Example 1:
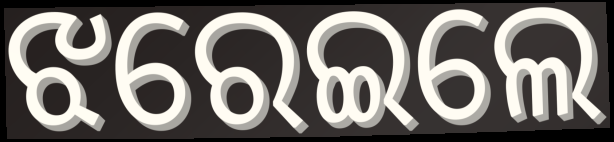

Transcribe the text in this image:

ଝରେଇଲେ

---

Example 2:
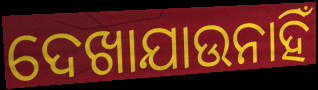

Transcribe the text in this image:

ଦେଖାଯାଉନାହିଁ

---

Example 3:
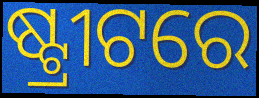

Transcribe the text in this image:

ଷ୍ଟ୍ରୀଟରେ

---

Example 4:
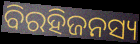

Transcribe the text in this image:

ବିରହିଜନସ୍ୟ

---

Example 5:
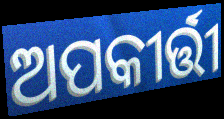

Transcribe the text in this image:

ଅପକୀର୍ତ୍ତୀ